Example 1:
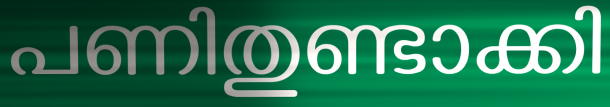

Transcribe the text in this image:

പണിതുണ്ടാക്കി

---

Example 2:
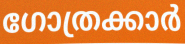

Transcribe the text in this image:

ഗോത്രക്കാർ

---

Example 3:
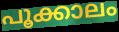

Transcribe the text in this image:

പൂക്കാലം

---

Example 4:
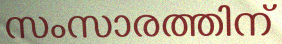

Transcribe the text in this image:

സംസാരത്തിന്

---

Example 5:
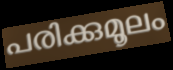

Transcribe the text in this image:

പരിക്കുമൂലം